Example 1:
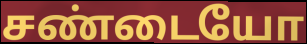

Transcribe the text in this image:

சண்டையோ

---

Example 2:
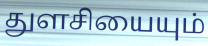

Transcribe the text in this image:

துளசியையும்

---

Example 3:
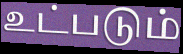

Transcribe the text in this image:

உட்படும்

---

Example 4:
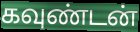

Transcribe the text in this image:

கவுண்டன்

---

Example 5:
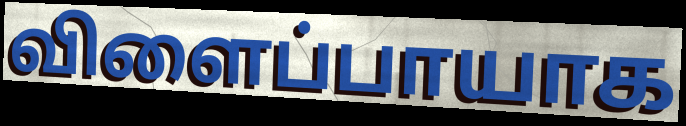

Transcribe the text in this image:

விளைப்பாயாக